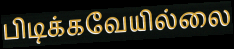
பிடிக்கவேயில்லை